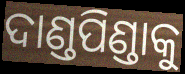
ଦାଣ୍ଡପିଣ୍ଡାକୁ